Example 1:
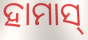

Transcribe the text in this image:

ହାମାସ୍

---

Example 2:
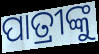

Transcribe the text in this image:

ପାତ୍ରୀଙ୍କୁ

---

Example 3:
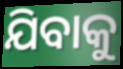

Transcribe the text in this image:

ଯିବାକୁ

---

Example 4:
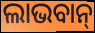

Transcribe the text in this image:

ଲାଭବାନ୍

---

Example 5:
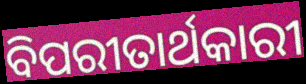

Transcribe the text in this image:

ବିପରୀତାର୍ଥକାରୀ